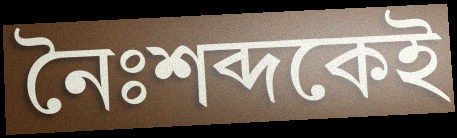
নৈঃশব্দকেই